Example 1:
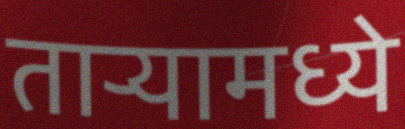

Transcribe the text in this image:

ताऱ्यामध्ये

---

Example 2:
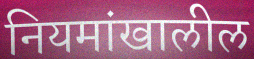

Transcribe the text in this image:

नियमांखालील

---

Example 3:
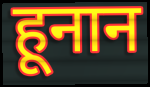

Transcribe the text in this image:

हूनान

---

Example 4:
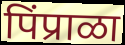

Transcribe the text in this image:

पिंप्राळा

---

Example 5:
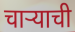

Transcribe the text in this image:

चाऱ्याची